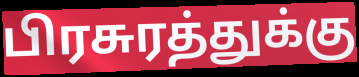
பிரசுரத்துக்கு